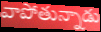
వాపోతున్నాడు